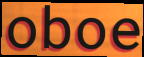
oboe